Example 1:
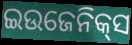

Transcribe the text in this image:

ଇଉଜେନିକ୍‌ସ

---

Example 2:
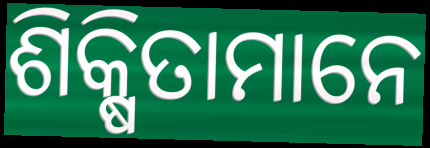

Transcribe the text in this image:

ଶିକ୍ଷିତାମାନେ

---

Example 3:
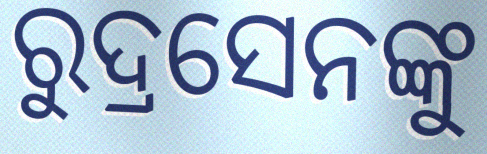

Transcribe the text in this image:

ରୁଦ୍ରସେନଙ୍କୁ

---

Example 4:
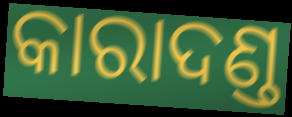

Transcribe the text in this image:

କାରାଦଣ୍ଡ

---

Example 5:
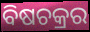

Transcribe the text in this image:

ବିଷଚକ୍ରର